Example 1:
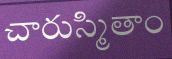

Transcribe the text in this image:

చారుస్మితాం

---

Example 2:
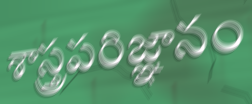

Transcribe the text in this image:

శాస్త్రపరిజ్ఞానం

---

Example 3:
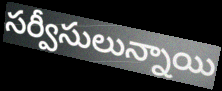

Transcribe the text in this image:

సర్వీసులున్నాయి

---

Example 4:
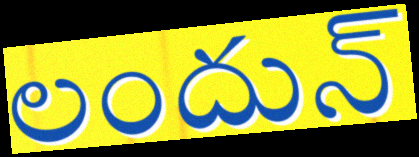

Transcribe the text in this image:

లందున్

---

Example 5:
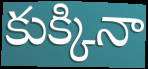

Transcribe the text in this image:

కుక్కినా